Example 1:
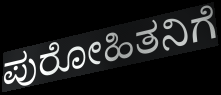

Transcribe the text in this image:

ಪುರೋಹಿತನಿಗೆ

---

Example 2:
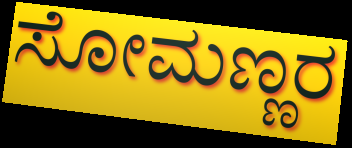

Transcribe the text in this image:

ಸೋಮಣ್ಣರ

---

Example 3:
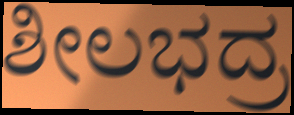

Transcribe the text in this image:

ಶೀಲಭದ್ರ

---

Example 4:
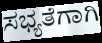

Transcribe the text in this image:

ಸಭ್ಯತೆಗಾಗಿ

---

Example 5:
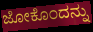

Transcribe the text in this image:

ಜೋಕೊಂದನ್ನು